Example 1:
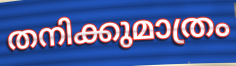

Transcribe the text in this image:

തനിക്കുമാത്രം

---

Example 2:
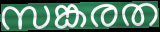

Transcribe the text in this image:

സങ്കരത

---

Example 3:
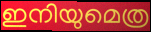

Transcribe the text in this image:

ഇനിയുമെത്ര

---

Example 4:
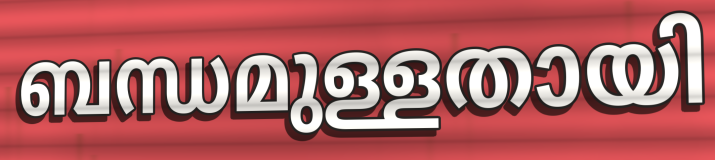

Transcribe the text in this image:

ബന്ധമുള്ളതായി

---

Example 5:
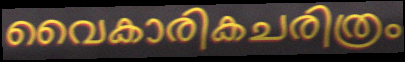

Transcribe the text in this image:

വൈകാരികചരിത്രം